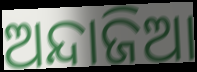
ଅନ୍ଦାଜିଆ